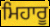
ਮਿਹਾਰੂ